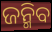
ଜନ୍ମିବ